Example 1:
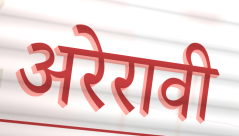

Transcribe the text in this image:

अरेरावी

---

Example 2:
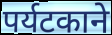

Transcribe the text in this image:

पर्यटकाने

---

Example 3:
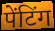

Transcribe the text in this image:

पेंटिंग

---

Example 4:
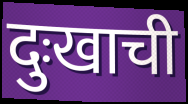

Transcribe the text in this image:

दुःखाची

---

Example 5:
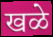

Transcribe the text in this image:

खळे